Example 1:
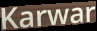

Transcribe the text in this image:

Karwar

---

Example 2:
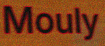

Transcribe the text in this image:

Mouly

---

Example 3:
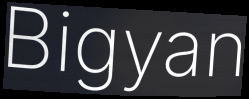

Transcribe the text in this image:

Bigyan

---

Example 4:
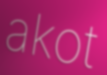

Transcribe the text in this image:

akot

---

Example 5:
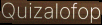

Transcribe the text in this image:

Quizalofop